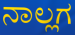
ನಾಲ್ಲಗ